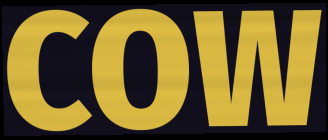
COW